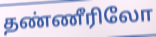
தண்ணீரிலோ